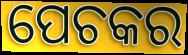
ପେଚକର